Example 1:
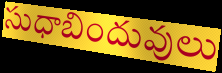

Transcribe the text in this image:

సుధాబిందువులు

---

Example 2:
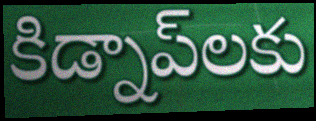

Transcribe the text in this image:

కిడ్నాప్‌లకు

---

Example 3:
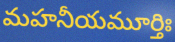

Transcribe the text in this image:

మహనీయమూర్తిః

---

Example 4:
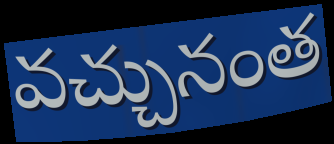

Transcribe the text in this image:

వచ్చునంత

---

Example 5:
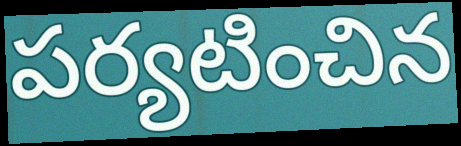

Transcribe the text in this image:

పర్యటించిన